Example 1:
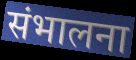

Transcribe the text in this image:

संभालना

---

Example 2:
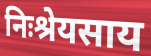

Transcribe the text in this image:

निःश्रेयसाय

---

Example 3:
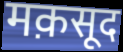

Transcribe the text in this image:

मक़सूद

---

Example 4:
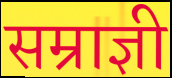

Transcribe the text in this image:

सम्राज्ञी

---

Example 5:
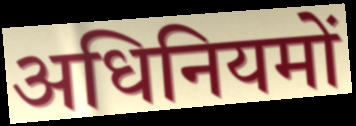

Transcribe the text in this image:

अधिनियमों